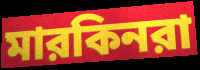
মারকিনরা